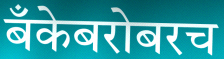
बँकेबरोबरच